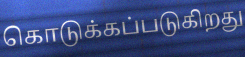
கொடுக்கப்படுகிறது